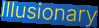
Illusionary